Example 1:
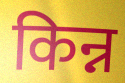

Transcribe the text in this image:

किन्न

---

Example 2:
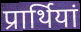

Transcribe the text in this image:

प्रार्थियां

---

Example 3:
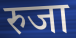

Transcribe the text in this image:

रुजा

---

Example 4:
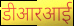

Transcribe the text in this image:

डीआरआई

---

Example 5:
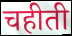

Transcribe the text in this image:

चहीती